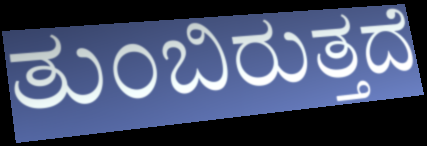
ತುಂಬಿರುತ್ತದೆ